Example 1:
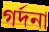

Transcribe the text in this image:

গর্দনা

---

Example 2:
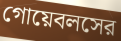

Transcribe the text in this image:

গোয়েবলসের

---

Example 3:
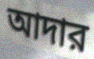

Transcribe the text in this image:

আদার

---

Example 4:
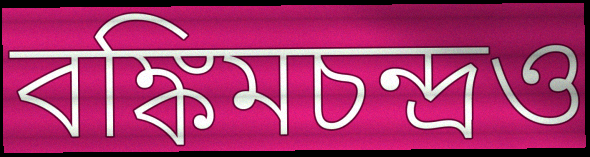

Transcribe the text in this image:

বঙ্কিমচন্দ্রও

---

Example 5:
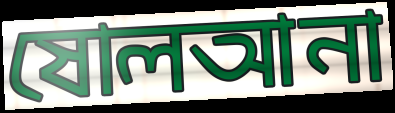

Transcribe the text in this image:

ষোলআনা